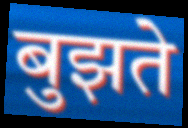
बुझते